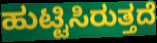
ಹುಟ್ಟಿಸಿರುತ್ತದೆ